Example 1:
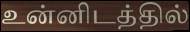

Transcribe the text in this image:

உன்னிடத்தில்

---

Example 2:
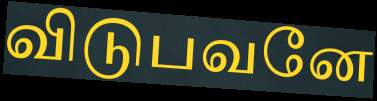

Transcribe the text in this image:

விடுபவனே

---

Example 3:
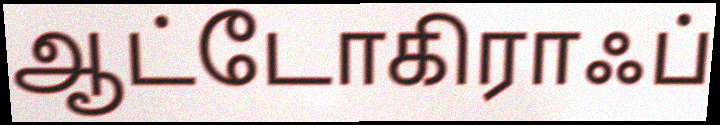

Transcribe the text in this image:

ஆட்டோகிராஃப்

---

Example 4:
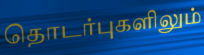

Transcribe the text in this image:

தொடர்புகளிலும்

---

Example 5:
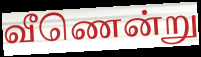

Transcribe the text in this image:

வீணென்று